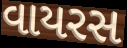
વાયરસ